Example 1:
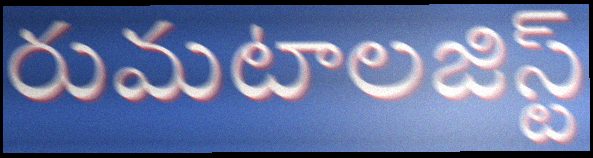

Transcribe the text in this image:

రుమటాలజిస్ట్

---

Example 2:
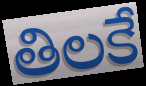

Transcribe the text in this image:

తిలకే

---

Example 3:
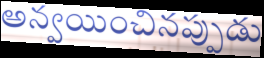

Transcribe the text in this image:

అన్వయించినప్పుడు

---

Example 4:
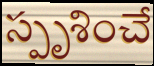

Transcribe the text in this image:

స్పృశించే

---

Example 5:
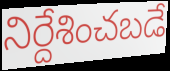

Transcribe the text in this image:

నిర్దేశించబడే